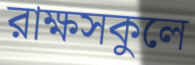
রাক্ষসকুলে